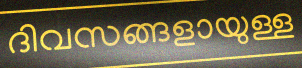
ദിവസങ്ങളായുള്ള